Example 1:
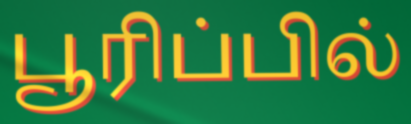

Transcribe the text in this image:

பூரிப்பில்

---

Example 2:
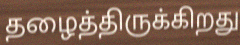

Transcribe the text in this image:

தழைத்திருக்கிறது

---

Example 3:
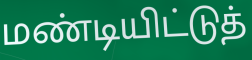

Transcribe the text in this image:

மண்டியிட்டுத்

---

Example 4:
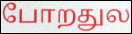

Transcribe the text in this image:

போறதுல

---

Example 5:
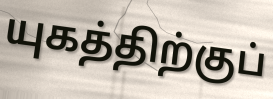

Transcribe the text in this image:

யுகத்திற்குப்